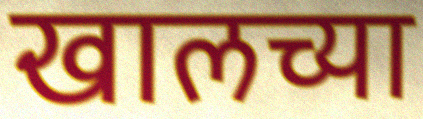
खालच्या